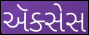
ઍક્સેસ